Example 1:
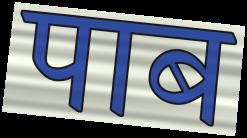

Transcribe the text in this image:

पाब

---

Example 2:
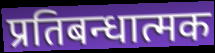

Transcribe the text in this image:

प्रतिबन्धात्मक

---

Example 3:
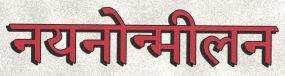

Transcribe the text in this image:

नयनोन्मीलन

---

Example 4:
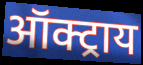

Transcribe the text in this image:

ऑक्ट्राय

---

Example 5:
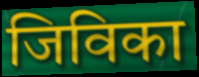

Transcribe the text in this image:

जिविका